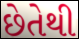
છેતેથી